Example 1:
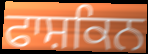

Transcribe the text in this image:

ਫਾਸ਼ਕਿਨ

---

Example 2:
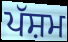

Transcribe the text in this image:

ਪੱਸ਼ਮ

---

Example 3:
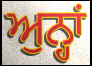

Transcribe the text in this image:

ਅੁਨ੍ਹਾਂ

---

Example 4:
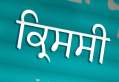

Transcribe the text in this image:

ਕ੍ਰਿਸਸੀ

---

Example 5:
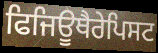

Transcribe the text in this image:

ਫਿਜਿਊਥੈਰੇਪਿਸਟ